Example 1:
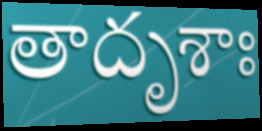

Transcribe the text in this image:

తాదృశాః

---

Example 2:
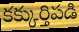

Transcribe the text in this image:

కక్కుర్తిపడి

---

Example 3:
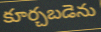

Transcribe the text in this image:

కూర్చబడెను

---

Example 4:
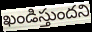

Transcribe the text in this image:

ఖండిస్తుందని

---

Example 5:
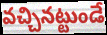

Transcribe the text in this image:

వచ్చినట్టుండే